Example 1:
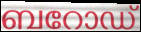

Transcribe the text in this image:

ബറോഡ്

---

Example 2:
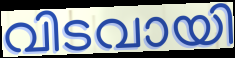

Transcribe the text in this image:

വിടവായി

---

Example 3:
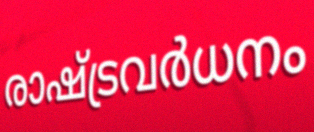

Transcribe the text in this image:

രാഷ്ട്രവർധനം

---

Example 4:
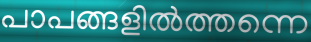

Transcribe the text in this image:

പാപങ്ങളിൽത്തന്നെ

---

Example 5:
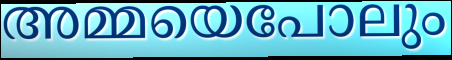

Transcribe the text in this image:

അമ്മയെപോലും